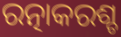
ରତ୍ନାକରଶ୍ଚ